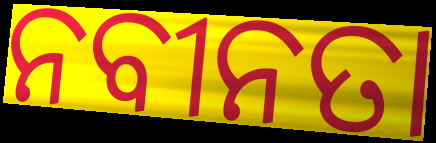
ନବୀନତା